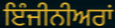
ਇੰਜੀਨੀਅਰਾਂ